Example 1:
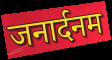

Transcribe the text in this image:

जनार्दनम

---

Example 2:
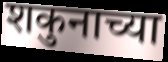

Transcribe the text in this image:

शकुनाच्या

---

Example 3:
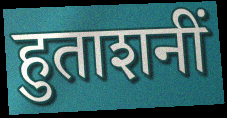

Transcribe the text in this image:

हुताशनीं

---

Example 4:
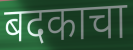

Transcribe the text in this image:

बदकाचा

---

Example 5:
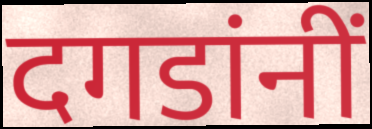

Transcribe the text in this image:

दगडांनीं